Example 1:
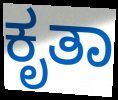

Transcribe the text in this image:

ಕೃತಾ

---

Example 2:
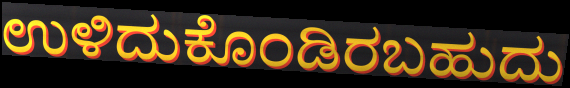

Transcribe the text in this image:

ಉಳಿದುಕೊಂಡಿರಬಹುದು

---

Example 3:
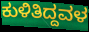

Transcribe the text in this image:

ಕುಳಿತಿದ್ದವಳ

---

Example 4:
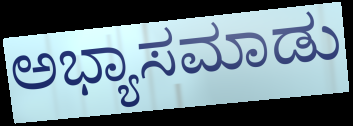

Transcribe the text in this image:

ಅಭ್ಯಾಸಮಾಡು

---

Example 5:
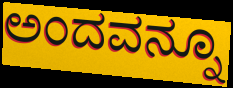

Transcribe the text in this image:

ಅಂದವನ್ನೂ